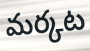
మర్కట